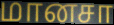
மானசா